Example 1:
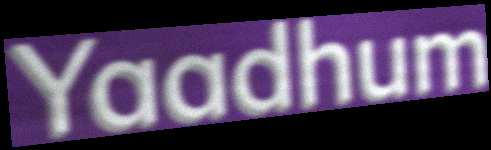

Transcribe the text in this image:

Yaadhum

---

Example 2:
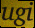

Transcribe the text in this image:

ugi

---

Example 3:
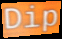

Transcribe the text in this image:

Dip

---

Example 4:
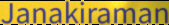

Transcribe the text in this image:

Janakiraman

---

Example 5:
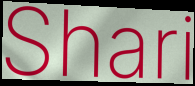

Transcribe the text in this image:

Shari